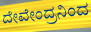
ದೇವೇಂದ್ರನಿಂದ